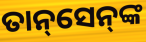
ତାନ୍‌ସେନ୍‌ଙ୍କ